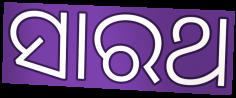
ସାରଥ